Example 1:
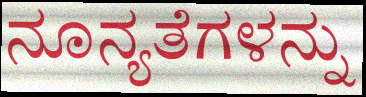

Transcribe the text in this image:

ನೂನ್ಯತೆಗಳನ್ನು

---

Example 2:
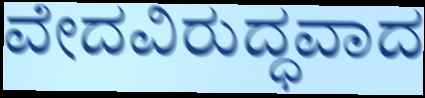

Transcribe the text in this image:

ವೇದವಿರುದ್ಧವಾದ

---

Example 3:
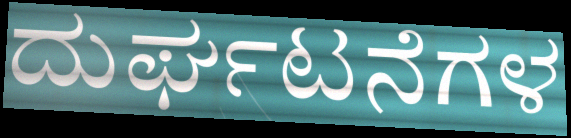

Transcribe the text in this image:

ದುರ್ಘಟನೆಗಳ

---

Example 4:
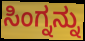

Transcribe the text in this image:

ಸಿಂಗ್ನನ್ನು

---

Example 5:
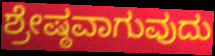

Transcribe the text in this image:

ಶ್ರೇಷ್ಠವಾಗುವುದು